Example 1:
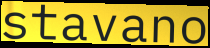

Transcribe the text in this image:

stavano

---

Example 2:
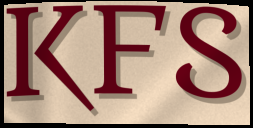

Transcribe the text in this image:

KFS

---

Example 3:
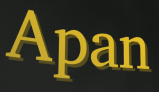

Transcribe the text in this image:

Apan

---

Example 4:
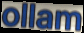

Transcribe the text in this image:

ollam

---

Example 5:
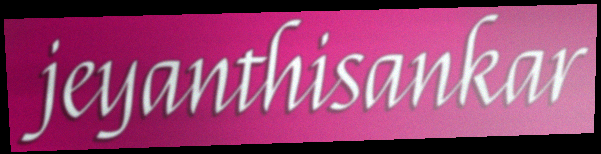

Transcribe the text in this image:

jeyanthisankar